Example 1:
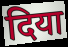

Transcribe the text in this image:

दिया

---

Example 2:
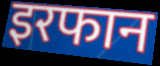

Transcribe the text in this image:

इरफान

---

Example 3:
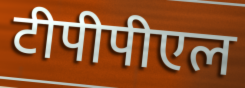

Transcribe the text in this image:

टीपीपीएल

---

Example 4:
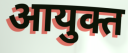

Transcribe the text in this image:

आयुक्त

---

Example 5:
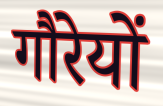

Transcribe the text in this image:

गौरेयों